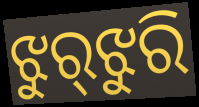
ଝୁର୍‌ଝୁରି